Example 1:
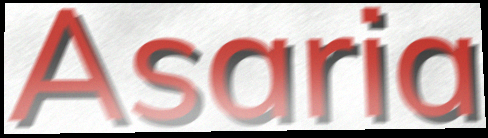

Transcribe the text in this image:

Asaria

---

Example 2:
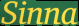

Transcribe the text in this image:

Sinna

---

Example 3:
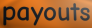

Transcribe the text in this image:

payouts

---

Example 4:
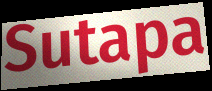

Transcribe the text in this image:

Sutapa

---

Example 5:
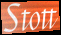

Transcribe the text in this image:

Stott